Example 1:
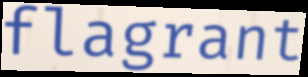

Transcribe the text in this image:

flagrant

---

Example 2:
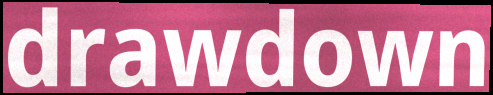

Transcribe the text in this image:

drawdown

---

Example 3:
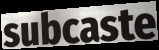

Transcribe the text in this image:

subcaste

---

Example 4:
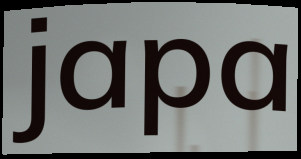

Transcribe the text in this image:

japa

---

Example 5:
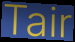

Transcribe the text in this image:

Tair